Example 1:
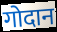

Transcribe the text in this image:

गोदान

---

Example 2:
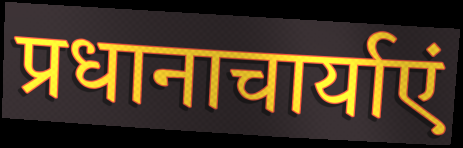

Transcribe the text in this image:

प्रधानाचार्याएं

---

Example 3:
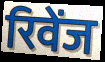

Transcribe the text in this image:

रिवेंज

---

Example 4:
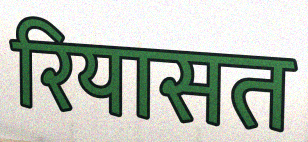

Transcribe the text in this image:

रियासत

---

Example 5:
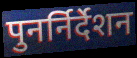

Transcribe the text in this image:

पुनर्निर्देशन